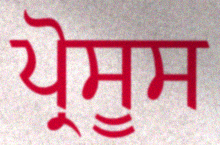
ਪ੍ਰੋਸੂਸ